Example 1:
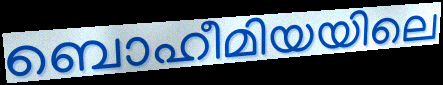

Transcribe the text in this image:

ബൊഹീമിയയിലെ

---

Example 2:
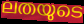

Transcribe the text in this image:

ലതയുടെ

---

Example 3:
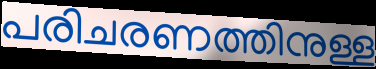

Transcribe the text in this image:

പരിചരണത്തിനുള്ള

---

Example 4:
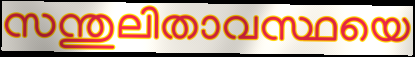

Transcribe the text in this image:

സന്തുലിതാവസ്ഥയെ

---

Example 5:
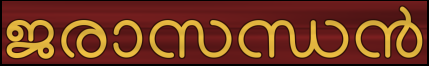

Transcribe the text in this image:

ജരാസന്ധൻ